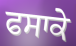
ਫਸਾਕੇ